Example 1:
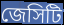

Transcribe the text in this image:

জেসিটি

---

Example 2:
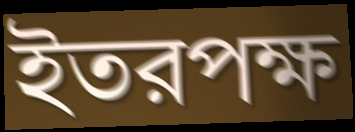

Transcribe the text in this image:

ইতরপক্ষ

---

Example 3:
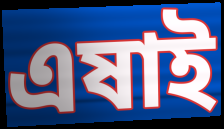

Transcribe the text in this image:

এষাই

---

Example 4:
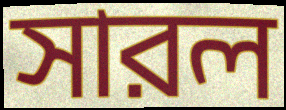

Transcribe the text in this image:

সারল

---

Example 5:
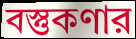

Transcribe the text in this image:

বস্তুকণার